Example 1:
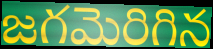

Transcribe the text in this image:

జగమెరిగిన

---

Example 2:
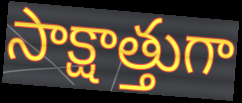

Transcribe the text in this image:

సాక్షాత్తుగా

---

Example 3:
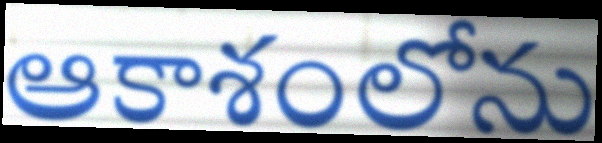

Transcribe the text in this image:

ఆకాశంలోను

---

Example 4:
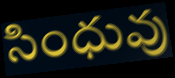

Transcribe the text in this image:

సింధువు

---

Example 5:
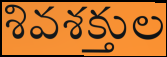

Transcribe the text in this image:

శివశక్తుల